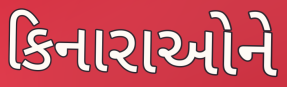
કિનારાઓને